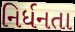
નિર્ધનતા